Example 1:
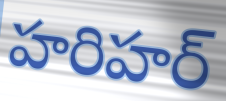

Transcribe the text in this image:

హరిహర్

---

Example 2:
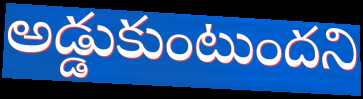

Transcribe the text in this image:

అడ్డుకుంటుందని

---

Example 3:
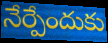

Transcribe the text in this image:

నేర్పేందుకు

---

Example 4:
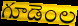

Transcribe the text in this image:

గూడెంల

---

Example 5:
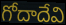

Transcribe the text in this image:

గోదాదేవి